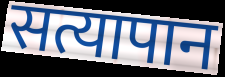
सत्यापान